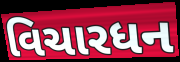
વિચારધન